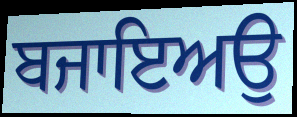
ਬਜਾਇਅਉ